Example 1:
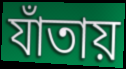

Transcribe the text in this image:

যাঁতায়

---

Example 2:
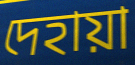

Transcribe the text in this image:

দেহায়া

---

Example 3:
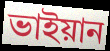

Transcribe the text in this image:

ভাইয়ান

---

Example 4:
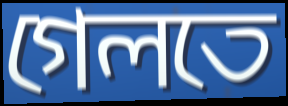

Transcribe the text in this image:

গেলতে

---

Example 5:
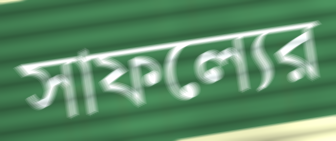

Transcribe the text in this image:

সাফল্যের